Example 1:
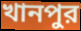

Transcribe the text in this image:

খানপুর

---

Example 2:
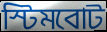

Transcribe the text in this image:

স্টিমবোট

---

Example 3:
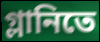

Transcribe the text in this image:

গ্লানিতে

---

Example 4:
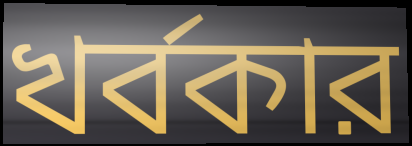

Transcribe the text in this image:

খর্বকার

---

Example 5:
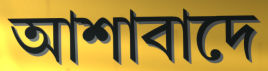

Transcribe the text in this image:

আশাবাদে